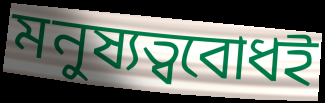
মনুষ্যত্ববোধই